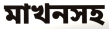
মাখনসহ